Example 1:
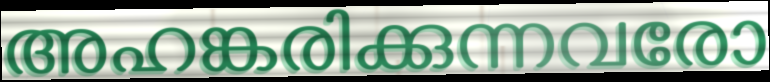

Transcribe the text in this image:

അഹങ്കരിക്കുന്നവരോ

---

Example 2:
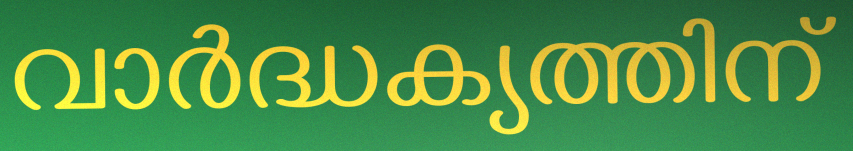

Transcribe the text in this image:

വാർദ്ധക്യത്തിന്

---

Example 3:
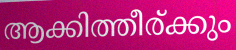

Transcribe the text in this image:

ആക്കിത്തീര്ക്കും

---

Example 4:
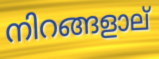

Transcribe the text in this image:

നിറങ്ങളാല്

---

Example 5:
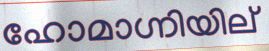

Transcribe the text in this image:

ഹോമാഗ്നിയില്